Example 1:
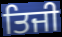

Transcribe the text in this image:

ਤਿਜੀ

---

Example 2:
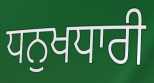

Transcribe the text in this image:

ਧਨੁਖਧਾਰੀ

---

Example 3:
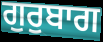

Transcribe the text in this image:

ਗੁਰੁਬਾਗ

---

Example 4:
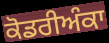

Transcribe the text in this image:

ਕੋਡਰੀਅੰਕਾ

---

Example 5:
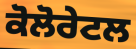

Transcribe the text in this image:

ਕੋਲੋਰੇਟਲ